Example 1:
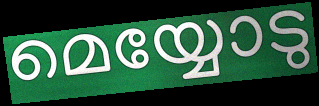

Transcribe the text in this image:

മെയ്യോടു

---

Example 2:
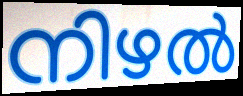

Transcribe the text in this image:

നിഴൽ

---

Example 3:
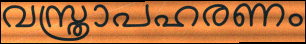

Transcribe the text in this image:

വസ്ത്രാപഹരണം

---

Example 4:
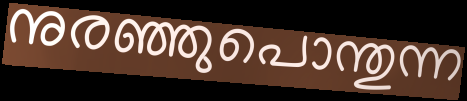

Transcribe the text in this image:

നുരഞ്ഞുപൊന്തുന്ന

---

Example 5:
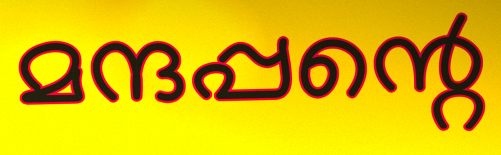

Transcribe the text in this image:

മന്ദപ്പന്റെ